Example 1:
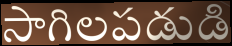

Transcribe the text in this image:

సాగిలపడుడి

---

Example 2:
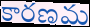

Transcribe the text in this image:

కారణమ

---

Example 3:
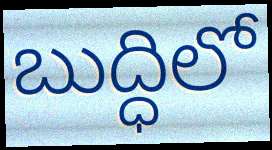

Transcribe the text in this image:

బుద్ధిలో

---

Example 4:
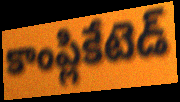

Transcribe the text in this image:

కాంప్లికేటెడ్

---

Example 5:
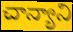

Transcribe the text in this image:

చాన్యాని